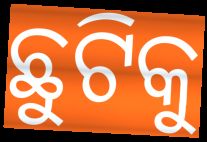
ଛୁଟିକୁ